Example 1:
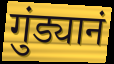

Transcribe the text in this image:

गुंड्यानं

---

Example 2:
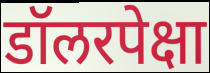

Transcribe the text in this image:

डॉलरपेक्षा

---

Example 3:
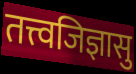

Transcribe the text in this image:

तत्त्वजिज्ञासु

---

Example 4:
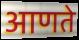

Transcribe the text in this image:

आणते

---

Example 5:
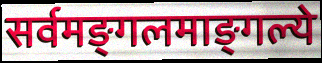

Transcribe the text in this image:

सर्वमङ्गलमाङ्गल्ये